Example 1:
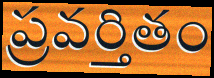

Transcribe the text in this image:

ప్రవర్తితం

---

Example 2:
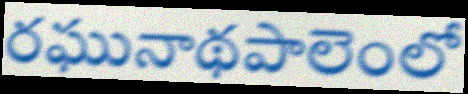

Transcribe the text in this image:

రఘునాథపాలెంలో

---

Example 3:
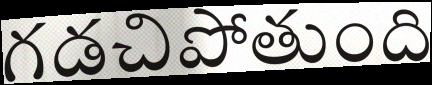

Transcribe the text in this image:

గడచిపోతుంది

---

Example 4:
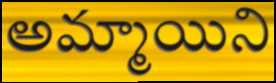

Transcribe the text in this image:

అమ్మాయిని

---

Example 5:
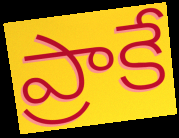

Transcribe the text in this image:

ప్రాకే